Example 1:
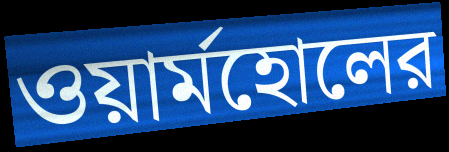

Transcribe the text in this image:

ওয়ার্মহোলের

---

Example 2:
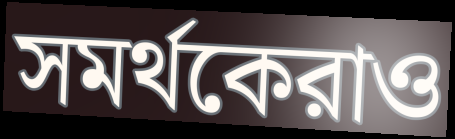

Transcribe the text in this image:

সমর্থকেরাও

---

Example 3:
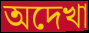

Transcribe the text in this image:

অদেখা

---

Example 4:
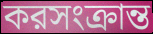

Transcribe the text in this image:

করসংক্রান্ত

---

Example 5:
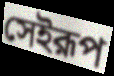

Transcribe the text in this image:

সেইরূপ